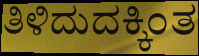
ತಿಳಿದುದಕ್ಕಿಂತ